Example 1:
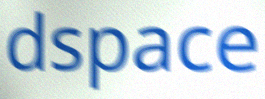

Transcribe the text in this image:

dspace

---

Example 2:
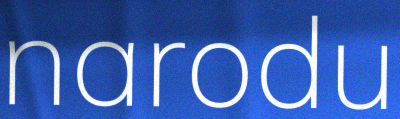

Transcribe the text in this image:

narodu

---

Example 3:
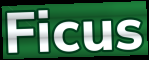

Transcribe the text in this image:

Ficus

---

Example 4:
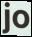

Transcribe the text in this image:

jo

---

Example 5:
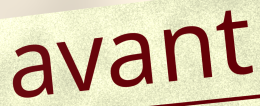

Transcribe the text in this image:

avant